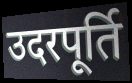
उदरपूर्ति